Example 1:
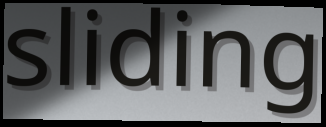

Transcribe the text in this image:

sliding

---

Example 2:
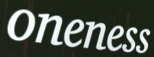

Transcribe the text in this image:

oneness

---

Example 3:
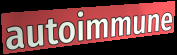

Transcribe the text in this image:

autoimmune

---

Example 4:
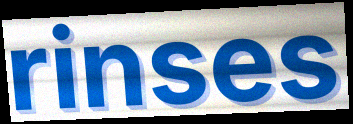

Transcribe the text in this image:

rinses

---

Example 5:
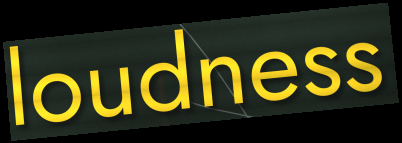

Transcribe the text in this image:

loudness